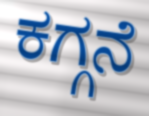
ಕಗ್ಗನೆ